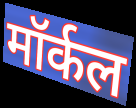
मॉर्कल